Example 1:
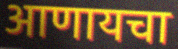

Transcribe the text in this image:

आणायचा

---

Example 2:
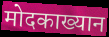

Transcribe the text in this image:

मोदकाख्यान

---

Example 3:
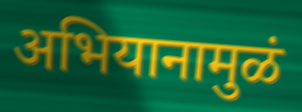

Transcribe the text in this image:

अभियानामुळं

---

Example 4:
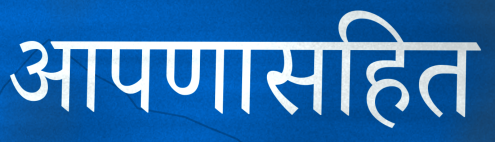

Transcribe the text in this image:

आपणासहित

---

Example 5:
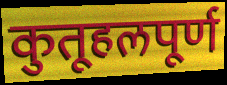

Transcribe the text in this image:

कुतूहलपूर्ण